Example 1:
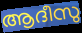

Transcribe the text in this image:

ആദീസു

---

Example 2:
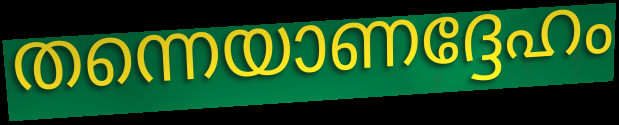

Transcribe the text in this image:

തന്നെയാണദ്ദേഹം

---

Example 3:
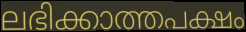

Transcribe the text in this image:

ലഭിക്കാത്തപക്ഷം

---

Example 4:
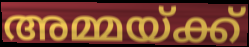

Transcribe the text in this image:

അമ്മയ്ക്ക്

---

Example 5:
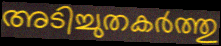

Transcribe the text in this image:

അടിച്ചുതകർത്തു